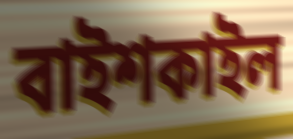
বাইশকাইল